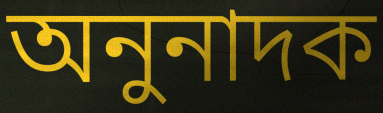
অনুনাদক